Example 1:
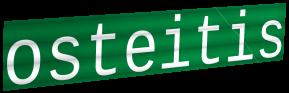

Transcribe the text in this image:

osteitis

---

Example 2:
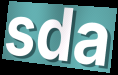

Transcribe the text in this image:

sda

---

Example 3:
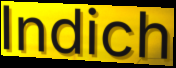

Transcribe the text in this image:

Indich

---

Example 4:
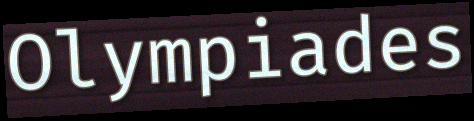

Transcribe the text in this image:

Olympiades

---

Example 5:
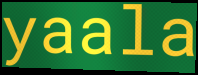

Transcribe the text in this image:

yaala